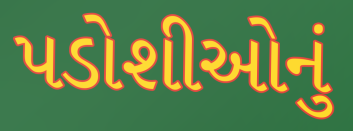
પડોશીઓનું